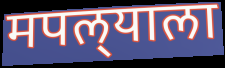
मपल्याला